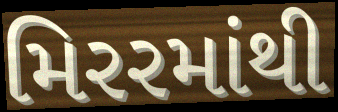
મિરરમાંથી